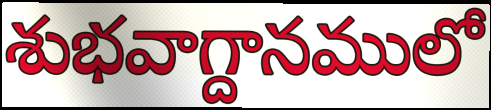
శుభవాగ్దానములో